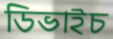
ডিভাইচ